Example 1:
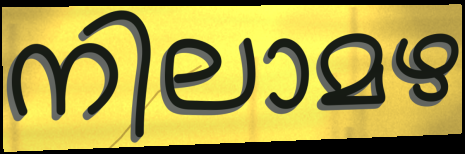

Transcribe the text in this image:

നിലാമഴ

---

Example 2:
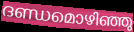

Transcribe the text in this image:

ദണ്ഡമൊഴിഞ്ഞു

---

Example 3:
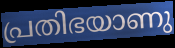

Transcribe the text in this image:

പ്രതിഭയാണു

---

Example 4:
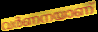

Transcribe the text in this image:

വർണനയാണ്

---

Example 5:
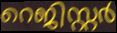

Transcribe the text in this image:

റെജിസ്റ്റർ